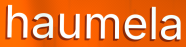
haumela